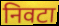
निवटा